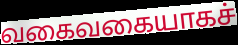
வகைவகையாகச்